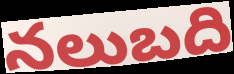
నలుబది